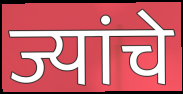
ज्यांचे